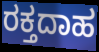
ರಕ್ತದಾಹ